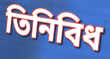
তিনিবিধ